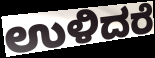
ಉಳಿದರೆ